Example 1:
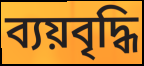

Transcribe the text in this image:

ব্যয়বৃদ্ধি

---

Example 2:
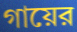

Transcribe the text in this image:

গায়ের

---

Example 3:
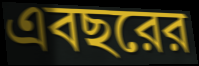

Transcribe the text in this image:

এবছরের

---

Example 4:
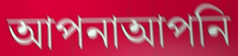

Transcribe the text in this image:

আপনাআপনি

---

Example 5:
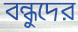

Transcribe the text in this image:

বন্ধুদের